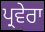
ਪ੍ਰਵੇਰਾ